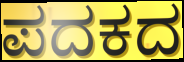
ಪದಕದ